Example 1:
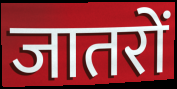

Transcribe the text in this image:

जातरों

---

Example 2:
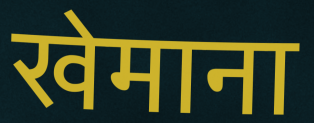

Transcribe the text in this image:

खेमाना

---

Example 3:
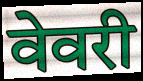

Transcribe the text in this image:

वेवरी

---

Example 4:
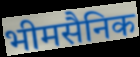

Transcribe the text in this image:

भीमसैनिक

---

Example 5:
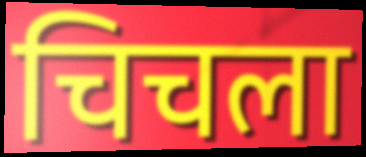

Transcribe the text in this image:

चिचला